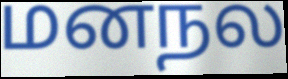
மனநல